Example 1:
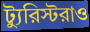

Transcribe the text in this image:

ট্যুরিস্টরাও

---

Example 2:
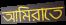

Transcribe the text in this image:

আমিরাতে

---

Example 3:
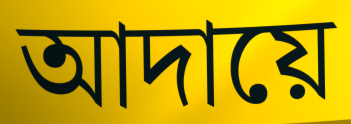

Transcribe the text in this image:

আদায়ে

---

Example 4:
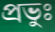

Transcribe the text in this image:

প্রভুঃ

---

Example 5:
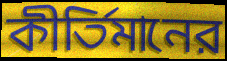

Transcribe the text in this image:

কীর্তিমানের